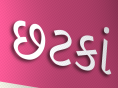
છટકાં